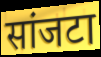
सांजटा